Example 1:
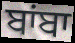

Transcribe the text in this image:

ਬਾਂਬਾ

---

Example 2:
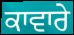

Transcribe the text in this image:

ਕਾਵਾਰੇ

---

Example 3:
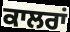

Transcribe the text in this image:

ਕਾਲਰਾਂ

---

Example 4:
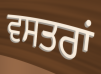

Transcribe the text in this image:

ਵਸਤਰਾਂ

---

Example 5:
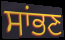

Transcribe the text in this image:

ਸਾਂਭਣ